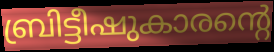
ബ്രിട്ടീഷുകാരന്റെ